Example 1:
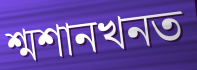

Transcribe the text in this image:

শ্মশানখনত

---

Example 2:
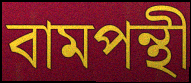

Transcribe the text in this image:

বামপন্থী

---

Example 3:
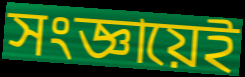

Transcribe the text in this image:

সংজ্ঞায়েই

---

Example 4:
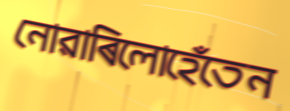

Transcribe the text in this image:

নোৱাৰিলোহেঁতেন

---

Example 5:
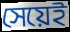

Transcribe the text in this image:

সেয়েই